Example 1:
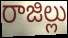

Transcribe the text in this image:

రాజిల్లు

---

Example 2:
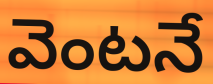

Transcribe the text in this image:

వెంటనే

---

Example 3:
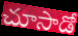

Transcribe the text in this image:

చూసాడో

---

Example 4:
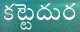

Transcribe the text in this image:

కట్టెదుర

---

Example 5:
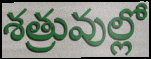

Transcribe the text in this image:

శత్రువుల్లో